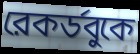
রেকর্ডবুকে